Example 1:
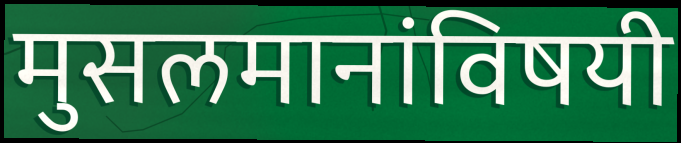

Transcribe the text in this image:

मुसलमानांविषयी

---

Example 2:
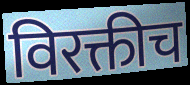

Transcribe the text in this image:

विरक्तीच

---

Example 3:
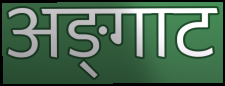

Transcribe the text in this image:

अङ्गाट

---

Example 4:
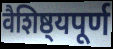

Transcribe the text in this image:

वैशिष्ठ्यपूर्ण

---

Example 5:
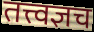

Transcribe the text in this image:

तत्त्वज्ञच